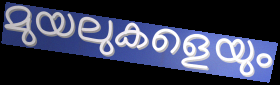
മുയലുകളെയും